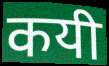
कयी